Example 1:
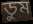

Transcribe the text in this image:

ডুম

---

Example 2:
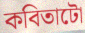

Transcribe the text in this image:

কবিতাটো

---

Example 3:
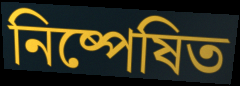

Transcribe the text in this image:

নিষ্পেষিত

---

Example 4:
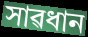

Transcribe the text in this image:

সাৱধান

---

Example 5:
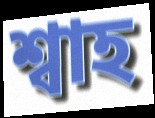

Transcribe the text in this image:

শ্বাহ